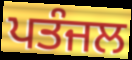
ਪਤੰਜਲ